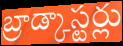
బ్రాడ్కాస్టర్లు